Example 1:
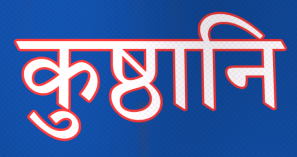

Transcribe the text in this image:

कुष्ठानि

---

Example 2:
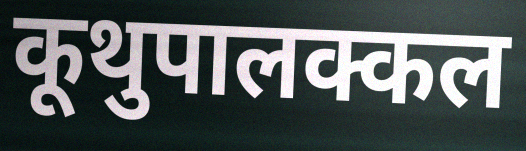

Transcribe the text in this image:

कूथुपालक्कल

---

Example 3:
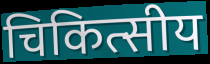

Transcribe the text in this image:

चिकित्सीय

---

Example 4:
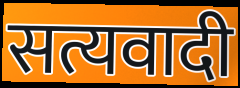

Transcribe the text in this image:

सत्यवादी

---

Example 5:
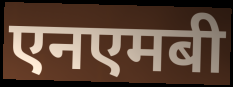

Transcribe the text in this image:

एनएमबी